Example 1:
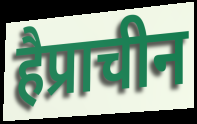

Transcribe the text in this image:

हैप्राचीन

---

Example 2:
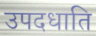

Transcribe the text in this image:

उपदधाति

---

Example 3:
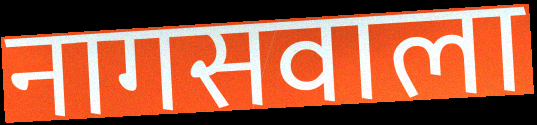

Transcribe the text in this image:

नागसवाला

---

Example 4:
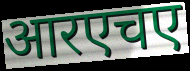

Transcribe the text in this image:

आरएचए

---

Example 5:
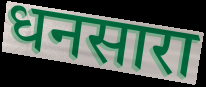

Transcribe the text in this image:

धनसारा